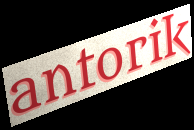
antorik